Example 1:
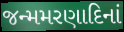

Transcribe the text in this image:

જન્મમરણાદિનાં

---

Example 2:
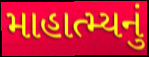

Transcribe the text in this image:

માહાત્મ્યનું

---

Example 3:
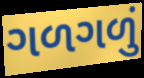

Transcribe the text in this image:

ગળગળું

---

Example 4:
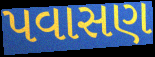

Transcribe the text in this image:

પવાસણ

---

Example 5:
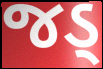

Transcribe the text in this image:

જડ્